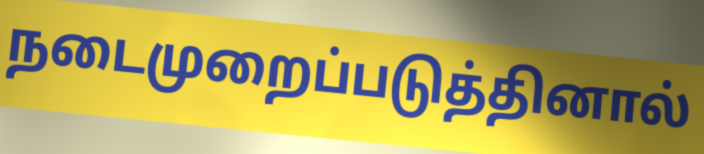
நடைமுறைப்படுத்தினால்